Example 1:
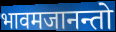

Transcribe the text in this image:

भावमजानन्तो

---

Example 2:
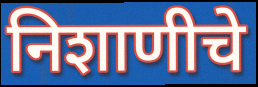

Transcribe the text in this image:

निशाणीचे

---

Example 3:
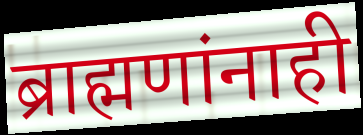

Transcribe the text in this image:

ब्राह्मणांनाही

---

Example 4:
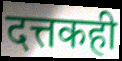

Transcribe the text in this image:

दत्तकही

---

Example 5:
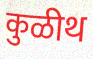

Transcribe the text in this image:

कुळीथ